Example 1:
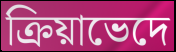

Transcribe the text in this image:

ক্রিয়াভেদে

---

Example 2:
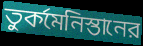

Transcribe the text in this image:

তুর্কমেনিস্তানের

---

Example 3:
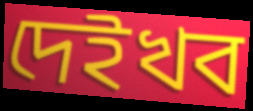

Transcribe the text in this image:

দেইখব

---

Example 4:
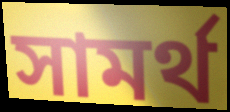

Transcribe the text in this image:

সামর্থ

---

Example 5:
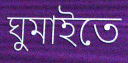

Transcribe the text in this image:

ঘুমাইতে